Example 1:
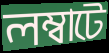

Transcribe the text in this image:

লম্বাটে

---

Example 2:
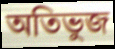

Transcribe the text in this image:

অতিভুজ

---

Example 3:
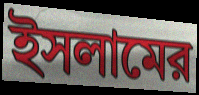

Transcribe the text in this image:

ইসলামের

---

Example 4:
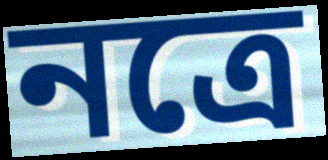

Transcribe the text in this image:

নত্রে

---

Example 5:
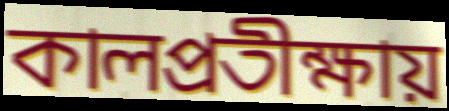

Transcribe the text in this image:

কালপ্রতীক্ষায়